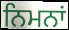
ਨਿਮਨਾਂ